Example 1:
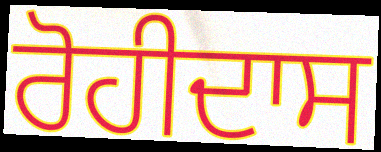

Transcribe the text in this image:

ਰੋਹੀਦਾਸ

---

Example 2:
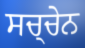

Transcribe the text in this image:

ਸਚ੍ਚੇਨ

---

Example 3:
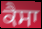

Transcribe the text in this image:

ਕੈਸਾ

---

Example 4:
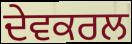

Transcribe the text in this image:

ਦੇਵਕਰਲ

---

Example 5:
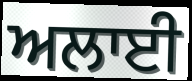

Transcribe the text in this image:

ਅਲਾਈ